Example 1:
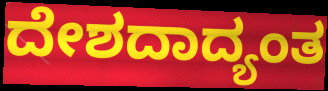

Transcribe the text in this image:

ದೇಶದಾದ್ಯಂತ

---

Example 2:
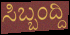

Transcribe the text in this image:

ಸಿಬ್ಬಂದ್ದಿ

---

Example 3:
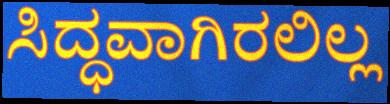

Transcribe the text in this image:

ಸಿದ್ಧವಾಗಿರಲಿಲ್ಲ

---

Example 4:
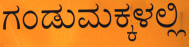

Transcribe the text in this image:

ಗಂಡುಮಕ್ಕಳಲ್ಲಿ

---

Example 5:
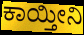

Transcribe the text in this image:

ಕಾಯ್ತೀನಿ